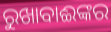
ରୁଖାବାଈଙ୍କର